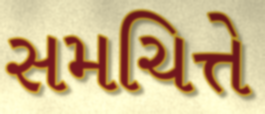
સમચિત્તે